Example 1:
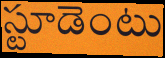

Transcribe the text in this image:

స్టూడెంటు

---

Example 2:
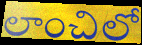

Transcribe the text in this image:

లాంచిలో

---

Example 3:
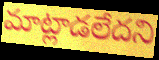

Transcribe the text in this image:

మాట్లాడలేదని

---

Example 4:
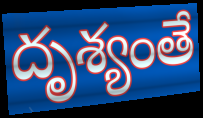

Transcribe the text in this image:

దృశ్యంతే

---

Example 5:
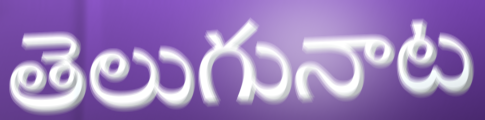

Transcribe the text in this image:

తెలుగునాట